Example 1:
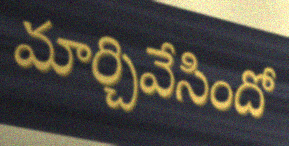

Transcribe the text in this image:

మార్చివేసిందో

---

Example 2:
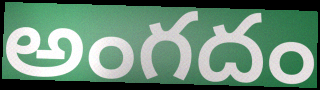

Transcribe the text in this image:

అంగదం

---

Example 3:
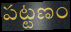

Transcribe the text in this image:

పట్టణం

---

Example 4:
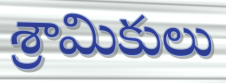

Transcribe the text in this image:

శ్రామికులు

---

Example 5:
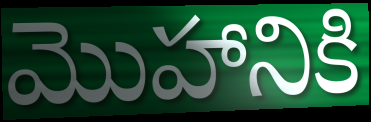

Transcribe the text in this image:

మొహానికి